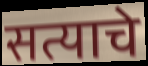
सत्याचे